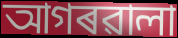
আগৰৱালা